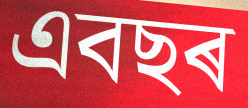
এবছৰ